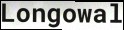
Longowal